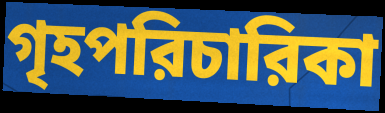
গৃহপরিচারিকা